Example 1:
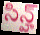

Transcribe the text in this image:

సిన్హ్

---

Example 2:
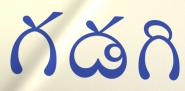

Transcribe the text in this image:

గడగి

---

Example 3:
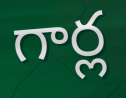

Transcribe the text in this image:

గార్ల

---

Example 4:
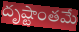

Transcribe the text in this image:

దృష్టాంతమే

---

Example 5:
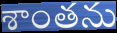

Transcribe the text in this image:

శాంతను